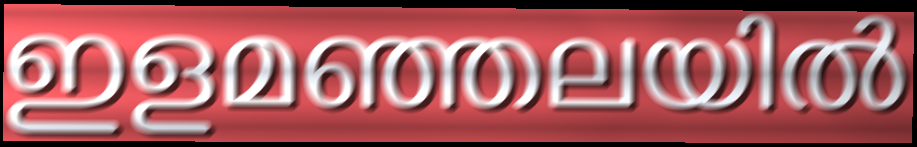
ഇളമഞ്ഞലയിൽ